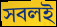
সবলই